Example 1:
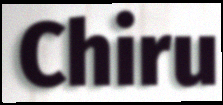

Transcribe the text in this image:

Chiru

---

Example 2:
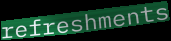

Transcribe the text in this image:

refreshments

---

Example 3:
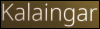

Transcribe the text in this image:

Kalaingar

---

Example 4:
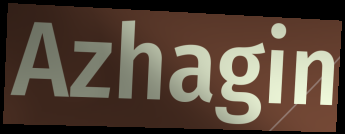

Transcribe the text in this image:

Azhagin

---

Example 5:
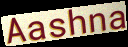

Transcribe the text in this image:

Aashna